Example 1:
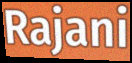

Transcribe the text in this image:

Rajani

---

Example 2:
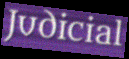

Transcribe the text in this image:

Judicial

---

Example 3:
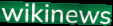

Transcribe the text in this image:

wikinews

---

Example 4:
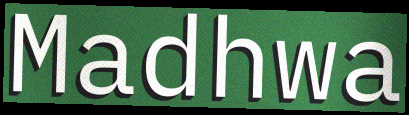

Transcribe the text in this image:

Madhwa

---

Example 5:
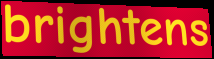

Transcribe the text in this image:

brightens